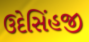
ઉદેસિંહજી